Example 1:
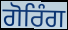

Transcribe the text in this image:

ਗੋਰਿੰਗ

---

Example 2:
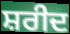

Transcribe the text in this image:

ਸ਼ਰੀਦ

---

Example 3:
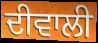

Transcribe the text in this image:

ਦੀਵਾਲੀ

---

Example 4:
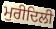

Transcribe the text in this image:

ਮੁਰੀਦਿਲੀ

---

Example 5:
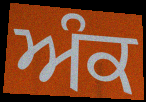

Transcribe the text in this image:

ਅੰਕ